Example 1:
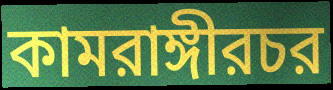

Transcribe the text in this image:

কামরাঙ্গীরচর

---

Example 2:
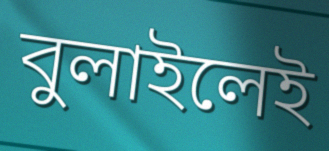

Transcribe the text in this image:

বুলাইলেই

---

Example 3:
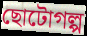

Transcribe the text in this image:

ছোটোগল্প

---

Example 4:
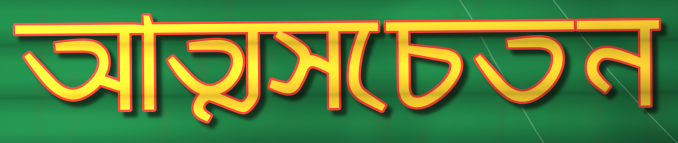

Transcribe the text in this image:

আত্মসচেতন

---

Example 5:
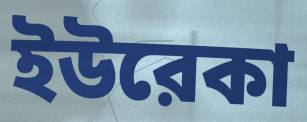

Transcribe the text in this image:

ইউরেকা